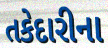
તકેદારીના